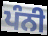
ਪੰਨੀ